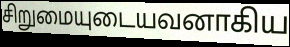
சிறுமையுடையவனாகிய